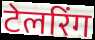
टेलरिंग